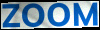
ZOOM